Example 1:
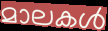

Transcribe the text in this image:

മാലകൾ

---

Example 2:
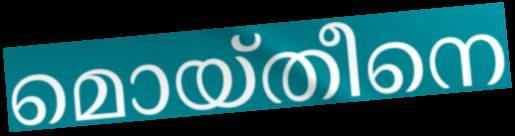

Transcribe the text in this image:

മൊയ്തീനെ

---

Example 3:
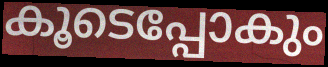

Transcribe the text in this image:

കൂടെപ്പോകും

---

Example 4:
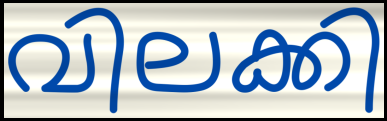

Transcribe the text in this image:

വിലക്കി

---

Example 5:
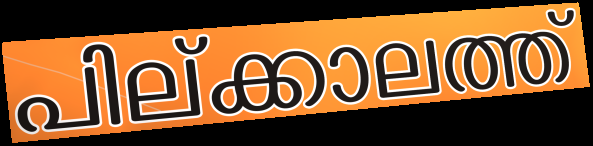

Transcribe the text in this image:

പില്ക്കാലത്ത്